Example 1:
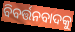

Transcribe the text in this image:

ବିବର୍ତ୍ତନବାଦକୁ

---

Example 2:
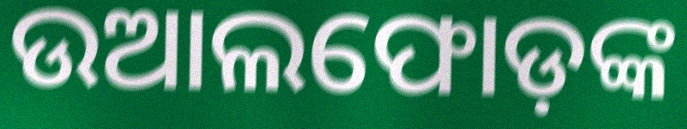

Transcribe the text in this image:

ଉଆଲଫୋଡ଼ଙ୍କ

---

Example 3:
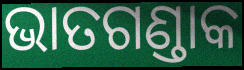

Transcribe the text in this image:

ଭାତଗଣ୍ଡାକ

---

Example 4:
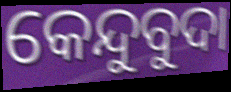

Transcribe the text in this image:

କେନ୍ଦୁବୁଦା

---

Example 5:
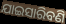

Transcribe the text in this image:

ଯାଇସାରିବଣି